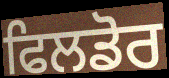
ਫਿਲਡੋਰ